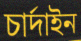
চাৰ্দাইন